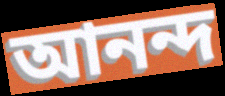
আনন্দ